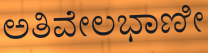
ಅತಿವೇಲಭಾಣೀ